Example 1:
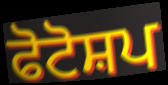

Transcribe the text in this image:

ਫੋਟੋਸ਼ਪ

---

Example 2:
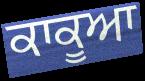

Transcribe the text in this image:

ਕਾਕੂਆ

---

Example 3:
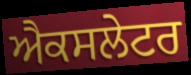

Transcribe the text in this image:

ਐਕਸਲੇਟਰ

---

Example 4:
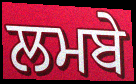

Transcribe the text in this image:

ਲਮਬੇ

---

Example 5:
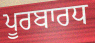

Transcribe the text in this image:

ਪੂਰਬਾਰਧ